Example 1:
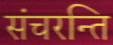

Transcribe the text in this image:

संचरन्ति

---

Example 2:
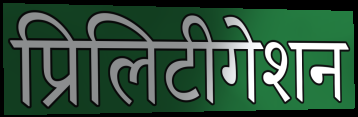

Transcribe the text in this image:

प्रिलिटीगेशन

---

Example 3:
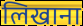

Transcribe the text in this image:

लिखाना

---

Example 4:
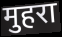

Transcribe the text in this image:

मुहरा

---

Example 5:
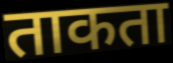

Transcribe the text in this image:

ताकता